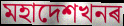
মহাদেশখনৰ